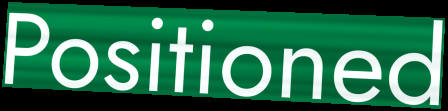
Positioned